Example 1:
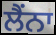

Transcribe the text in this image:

ਲੈਂਨਾ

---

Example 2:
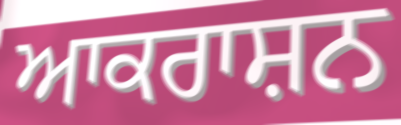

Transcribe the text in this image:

ਆਕਰਾਸ਼ਨ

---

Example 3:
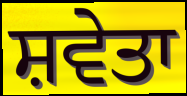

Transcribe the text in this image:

ਸ਼ਵੇਤਾ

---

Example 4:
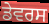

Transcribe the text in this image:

ਡੇਵਰਸ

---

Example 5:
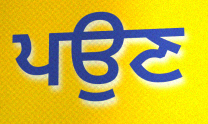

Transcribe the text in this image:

ਪਉਣ